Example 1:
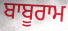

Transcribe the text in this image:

ਬਾਬੂਰਾਮ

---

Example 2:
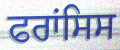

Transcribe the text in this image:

ਫਰਾਂਸਿਸ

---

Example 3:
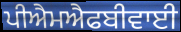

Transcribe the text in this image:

ਪੀਐਮਐਫਬੀਵਾਈ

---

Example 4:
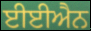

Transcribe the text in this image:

ਈਈਐਨ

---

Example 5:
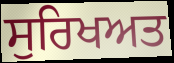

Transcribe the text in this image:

ਸੁਰਿਖਅਤ